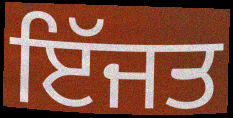
ਇੱਜਤ